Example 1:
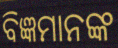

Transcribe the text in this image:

ବିଜ୍ଞମାନଙ୍କ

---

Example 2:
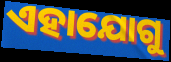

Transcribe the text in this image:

ଏହାଯୋଗୁ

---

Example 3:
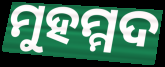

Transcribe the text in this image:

ମୁହମ୍ମଦ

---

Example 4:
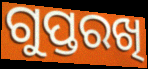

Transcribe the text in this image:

ଗୁପ୍ତରଖି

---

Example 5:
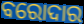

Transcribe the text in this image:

ବରୋଦାର